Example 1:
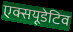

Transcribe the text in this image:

एक्सयूडेटिव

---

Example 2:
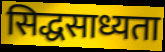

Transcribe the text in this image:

सिद्धसाध्यता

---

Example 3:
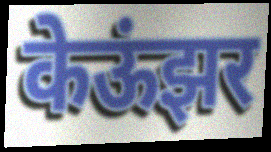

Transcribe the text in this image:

केऊंझर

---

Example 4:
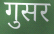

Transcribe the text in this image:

गुसर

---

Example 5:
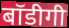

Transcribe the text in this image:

बॉडीगी